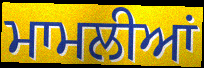
ਮਾਮਲੀਆਂ